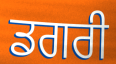
ਡਗਰੀ